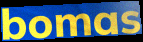
bomas